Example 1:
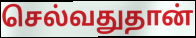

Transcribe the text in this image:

செல்வதுதான்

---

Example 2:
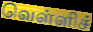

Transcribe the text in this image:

வெள்ளிச்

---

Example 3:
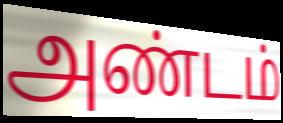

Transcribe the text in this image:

அண்டம்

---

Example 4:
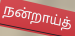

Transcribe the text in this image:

நன்றாய்த்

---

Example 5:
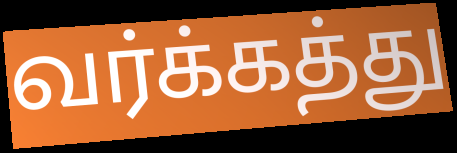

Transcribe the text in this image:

வர்க்கத்து